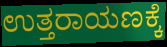
ಉತ್ತರಾಯಣಕ್ಕೆ